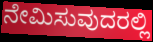
ನೇಮಿಸುವುದರಲ್ಲಿ